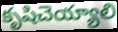
కృషిచెయ్యాలి